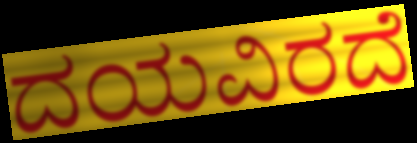
ದಯವಿರದೆ